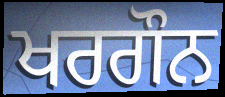
ਖਰਗੌਨ